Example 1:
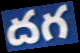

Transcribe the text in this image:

దగ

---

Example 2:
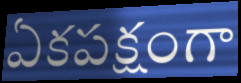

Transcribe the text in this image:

ఏకపక్షంగా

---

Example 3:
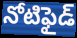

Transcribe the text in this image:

నోటిఫైడ్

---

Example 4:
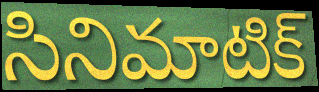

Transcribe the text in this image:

సినిమాటిక్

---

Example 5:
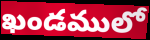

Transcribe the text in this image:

ఖండములో